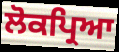
ਲੋਕਪ੍ਰਿਆ